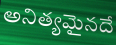
అనిత్యమైనదే